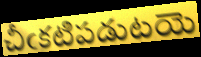
చీఁకటిపడుటయె